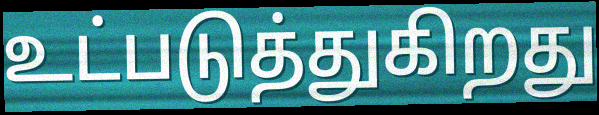
உட்படுத்துகிறது